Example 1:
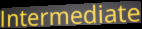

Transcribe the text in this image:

Intermediate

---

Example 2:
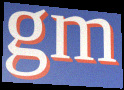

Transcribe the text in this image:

gm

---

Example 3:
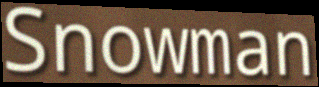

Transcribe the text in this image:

Snowman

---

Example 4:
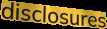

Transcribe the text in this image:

disclosures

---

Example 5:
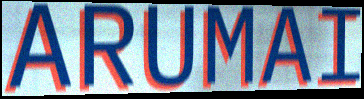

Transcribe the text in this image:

ARUMAI